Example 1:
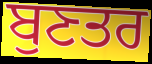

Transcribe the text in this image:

ਬੁਣਤਰ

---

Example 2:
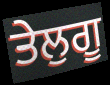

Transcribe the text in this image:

ਤੇਲੁਗੂ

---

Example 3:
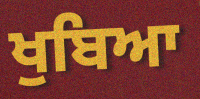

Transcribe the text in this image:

ਖੁਬਿਆ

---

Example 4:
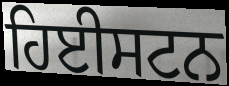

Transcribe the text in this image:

ਹਿਈਸਟਨ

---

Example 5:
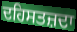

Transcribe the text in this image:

ਦਹਿਸਤਜ਼ਦਾ